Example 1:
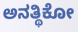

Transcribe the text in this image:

ಅನತ್ಥಿಕೋ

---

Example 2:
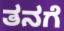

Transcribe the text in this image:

ತನಗೆ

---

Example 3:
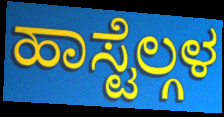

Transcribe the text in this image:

ಹಾಸ್ಟೆಲ್ಗಳ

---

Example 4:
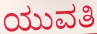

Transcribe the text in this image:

ಯುವತಿ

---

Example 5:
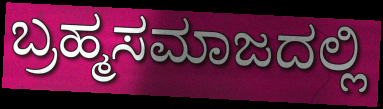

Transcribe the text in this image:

ಬ್ರಹ್ಮಸಮಾಜದಲ್ಲಿ